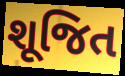
શૂજિત